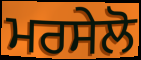
ਮਰਸੇਲੋ